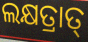
ଲକ୍ଷତ୍ରାତ୍